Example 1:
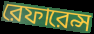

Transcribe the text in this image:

রেফারেন্স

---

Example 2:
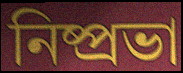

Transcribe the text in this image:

নিষ্প্রভা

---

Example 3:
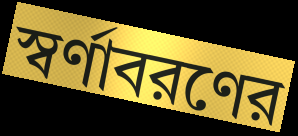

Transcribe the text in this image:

স্বর্ণাবরণের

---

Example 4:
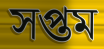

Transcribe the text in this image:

সপ্তম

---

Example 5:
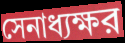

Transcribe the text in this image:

সেনাধ্যক্ষর